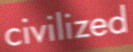
civilized